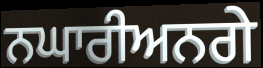
ਨਘਾਰੀਅਨਗੇ